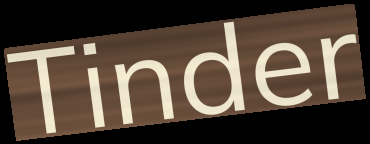
Tinder